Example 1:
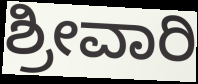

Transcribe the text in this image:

ಶ್ರೀವಾರಿ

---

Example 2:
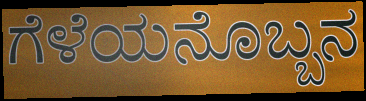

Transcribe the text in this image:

ಗೆಳೆಯನೊಬ್ಬನ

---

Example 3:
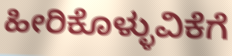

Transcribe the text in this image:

ಹೀರಿಕೊಳ್ಳುವಿಕೆಗೆ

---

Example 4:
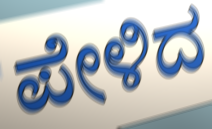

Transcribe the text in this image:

ಪೇಳಿದ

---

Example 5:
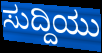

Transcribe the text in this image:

ಸುದ್ದಿಯು